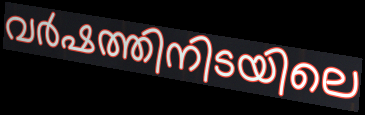
വർഷത്തിനിടയിലെ